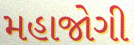
મહાજોગી